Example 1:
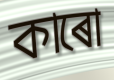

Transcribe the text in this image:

কাৰো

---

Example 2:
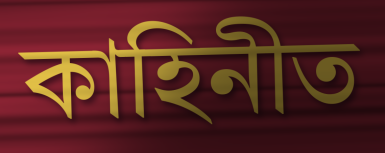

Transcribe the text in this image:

কাহিনীত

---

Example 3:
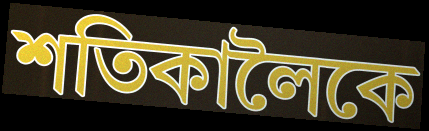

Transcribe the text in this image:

শতিকালৈকে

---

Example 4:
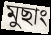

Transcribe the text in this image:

মুছাং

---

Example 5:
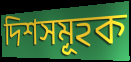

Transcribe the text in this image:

দিশসমূহক